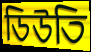
ডিউতি